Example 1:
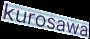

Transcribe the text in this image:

kurosawa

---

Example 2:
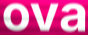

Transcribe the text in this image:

ova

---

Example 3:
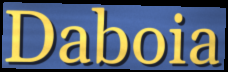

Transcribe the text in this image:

Daboia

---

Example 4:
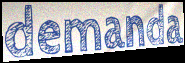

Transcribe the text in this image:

demanda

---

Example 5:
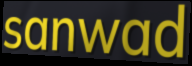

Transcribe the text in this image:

sanwad